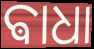
ଵାଧା